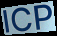
ICP